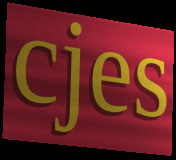
cjes